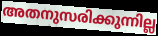
അതനുസരിക്കുന്നില്ല